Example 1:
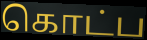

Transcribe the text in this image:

கொட்ப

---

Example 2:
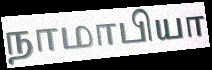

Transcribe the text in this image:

நாமாபியா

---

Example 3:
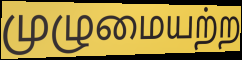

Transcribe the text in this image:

முழுமையற்ற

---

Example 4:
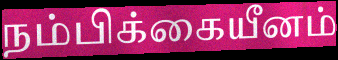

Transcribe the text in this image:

நம்பிக்கையீனம்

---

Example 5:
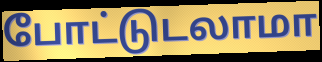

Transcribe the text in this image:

போட்டுடலாமா